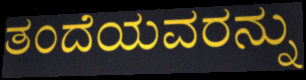
ತಂದೆಯವರನ್ನು